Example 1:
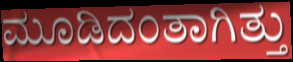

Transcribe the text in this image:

ಮೂಡಿದಂತಾಗಿತ್ತು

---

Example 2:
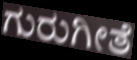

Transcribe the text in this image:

ಗುರುಗೀತೆ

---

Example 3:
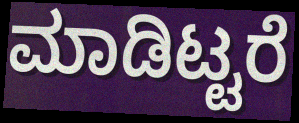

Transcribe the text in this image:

ಮಾಡಿಟ್ಟರೆ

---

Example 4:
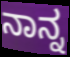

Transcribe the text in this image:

ನಾನ್ನ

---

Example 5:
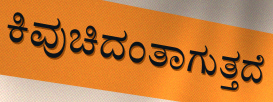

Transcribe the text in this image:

ಕಿವುಚಿದಂತಾಗುತ್ತದೆ